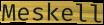
Meskell